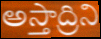
అస్తాద్రిని